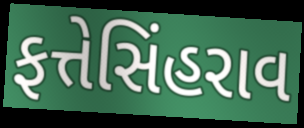
ફત્તેસિંહરાવ